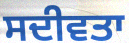
ਸਦੀਵਤਾ